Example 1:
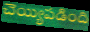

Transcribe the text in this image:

చెయ్యిపడింది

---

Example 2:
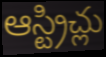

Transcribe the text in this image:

ఆస్ట్రిచ్లు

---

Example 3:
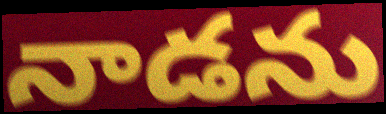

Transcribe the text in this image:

నాడను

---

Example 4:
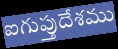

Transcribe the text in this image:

ఐగుప్తుదేశము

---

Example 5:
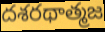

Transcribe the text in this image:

దశరథాత్మజ